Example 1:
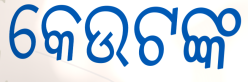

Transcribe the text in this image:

କେଉଟଙ୍କ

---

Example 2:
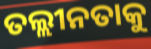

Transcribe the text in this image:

ତଲ୍ଲୀନତାକୁ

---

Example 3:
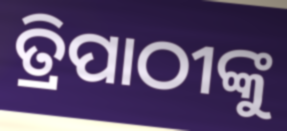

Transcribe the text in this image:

ତ୍ରିପାଠୀଙ୍କୁ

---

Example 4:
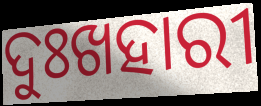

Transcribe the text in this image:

ଦୁଃଖହାରୀ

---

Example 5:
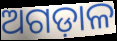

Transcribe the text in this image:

ଅଗଡ଼ାଳ